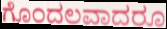
ಗೊಂದಲವಾದರೂ